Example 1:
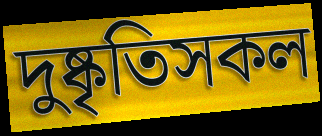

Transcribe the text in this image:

দুষ্কৃতিসকল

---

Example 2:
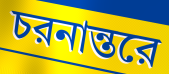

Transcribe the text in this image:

চরনান্তরে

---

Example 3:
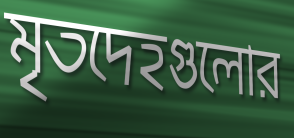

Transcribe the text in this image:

মৃতদেহগুলোর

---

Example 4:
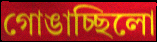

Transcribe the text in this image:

গোঙাচ্ছিলো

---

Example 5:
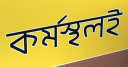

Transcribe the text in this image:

কর্মস্থলই